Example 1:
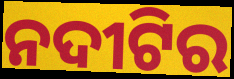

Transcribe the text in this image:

ନଦୀଟିର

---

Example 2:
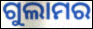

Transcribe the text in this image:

ଗୁଲାମର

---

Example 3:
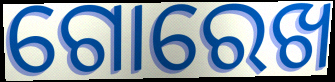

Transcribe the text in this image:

ଗୋରେଖ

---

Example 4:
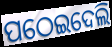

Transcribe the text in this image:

ପଠେଇଦେଲି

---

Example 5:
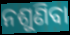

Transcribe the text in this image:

ନଶୁଣିବା